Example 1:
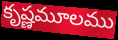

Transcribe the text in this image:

కృష్ణమూలము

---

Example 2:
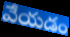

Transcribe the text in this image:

వేయడం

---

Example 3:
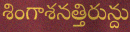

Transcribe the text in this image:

శింగాశనత్తిరున్దు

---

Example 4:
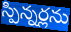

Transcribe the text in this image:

స్పిన్నర్లను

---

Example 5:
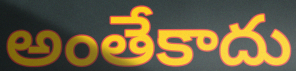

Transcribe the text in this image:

అంతేకాదు